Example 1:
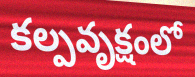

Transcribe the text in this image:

కల్పవృక్షంలో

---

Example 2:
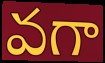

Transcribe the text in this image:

వగా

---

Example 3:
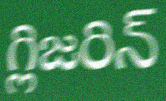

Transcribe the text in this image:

గ్లిజరిన్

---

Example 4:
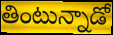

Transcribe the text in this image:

తింటున్నాడో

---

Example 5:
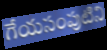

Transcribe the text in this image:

గేయసంపుటిని